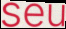
seu